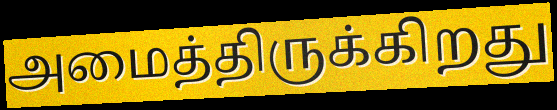
அமைத்திருக்கிறது